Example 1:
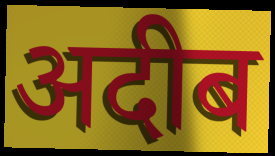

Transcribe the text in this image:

अदीब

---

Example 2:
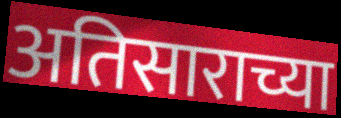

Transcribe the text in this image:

अतिसाराच्या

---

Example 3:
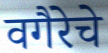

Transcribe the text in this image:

वगैरेचे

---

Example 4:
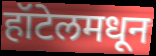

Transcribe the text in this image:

हॉटेलमधून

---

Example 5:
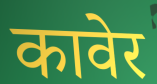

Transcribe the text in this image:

कावेर